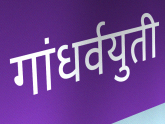
गांधर्वयुती